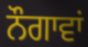
ਨੌਗਾਵਾਂ